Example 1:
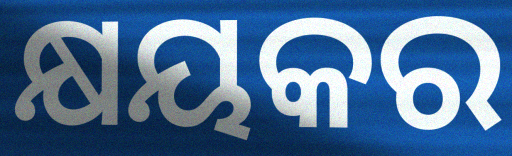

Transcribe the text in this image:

କ୍ଷୟକର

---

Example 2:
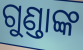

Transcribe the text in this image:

ଗୁଣ୍ଡାଙ୍କ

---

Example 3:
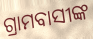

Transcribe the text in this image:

ଗ୍ରାମବାସୀଙ୍କ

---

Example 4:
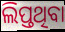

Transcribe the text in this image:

ଲିପ୍ତଥିବା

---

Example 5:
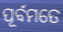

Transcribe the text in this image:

ପୂର୍ବମତେ